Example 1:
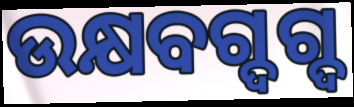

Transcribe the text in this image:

ଉକ୍ଷବଗ୍ଦଗ୍ଦ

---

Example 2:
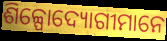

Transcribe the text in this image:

ଶିଳ୍ପୋଦ୍ୟୋଗୀମାନେ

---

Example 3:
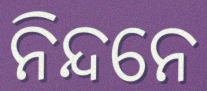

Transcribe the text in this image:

ନିନ୍ଦନେ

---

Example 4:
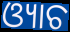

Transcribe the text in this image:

ଓ୍ୟାଚ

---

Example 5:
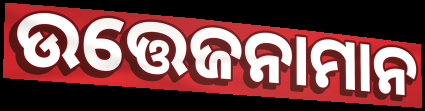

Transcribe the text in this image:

ଉତ୍ତେଜନାମାନ